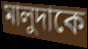
মালুদাকে